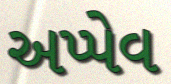
અપ્પેવ